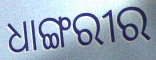
ଧାଙ୍ଗରୀର